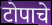
टोपाचे